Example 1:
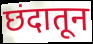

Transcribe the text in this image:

छंदातून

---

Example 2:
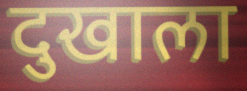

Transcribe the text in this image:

दुखाला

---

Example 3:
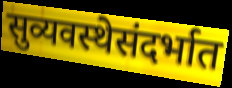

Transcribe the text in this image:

सुव्यवस्थेसंदर्भात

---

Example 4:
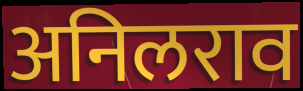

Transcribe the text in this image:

अनिलराव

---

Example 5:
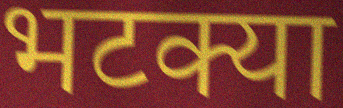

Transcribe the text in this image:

भटक्या